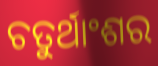
ଚତୁର୍ଥାଂଶର